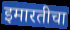
इमारतीचा